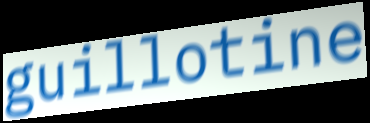
guillotine